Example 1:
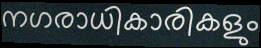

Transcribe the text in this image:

നഗരാധികാരികളും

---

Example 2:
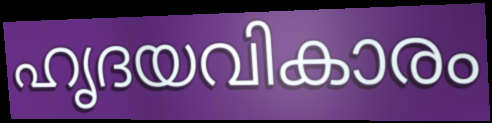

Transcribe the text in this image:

ഹൃദയവികാരം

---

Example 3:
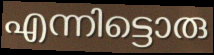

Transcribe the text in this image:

എന്നിട്ടൊരു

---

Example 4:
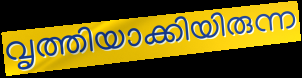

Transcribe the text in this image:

വൃത്തിയാക്കിയിരുന്ന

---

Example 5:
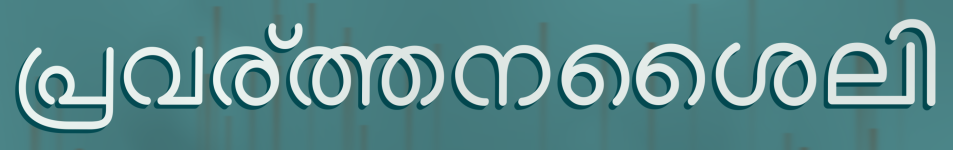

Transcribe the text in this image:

പ്രവര്ത്തനശൈലി